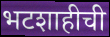
भटशाहीची